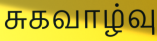
சுகவாழ்வு